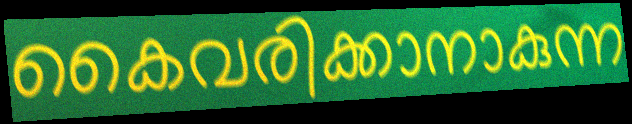
കൈവരിക്കാനാകുന്ന